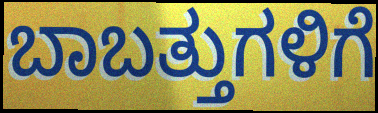
ಬಾಬತ್ತುಗಳಿಗೆ